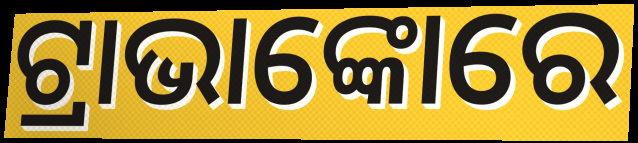
ଟ୍ରାଭାଙ୍କୋରେ